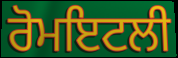
ਰੋਮਇਟਲੀ